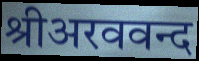
श्रीअरववन्द